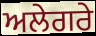
ਅਲੇਗਰੇ